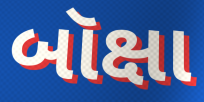
બૉક્ષા